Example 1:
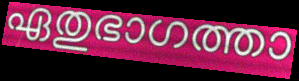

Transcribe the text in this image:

ഏതുഭാഗത്താ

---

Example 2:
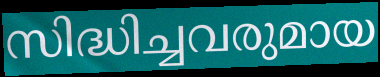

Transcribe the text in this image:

സിദ്ധിച്ചവരുമായ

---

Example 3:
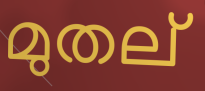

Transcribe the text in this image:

മുതല്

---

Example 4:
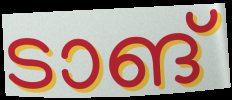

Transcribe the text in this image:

ടാങ്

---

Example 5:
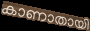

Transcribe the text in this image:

കാണാതായി